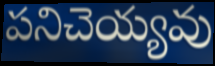
పనిచెయ్యవు